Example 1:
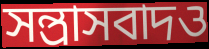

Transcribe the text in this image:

সন্ত্রাসবাদও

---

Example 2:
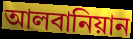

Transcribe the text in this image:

আলবানিয়ান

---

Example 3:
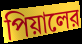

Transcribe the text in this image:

পিয়ালের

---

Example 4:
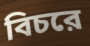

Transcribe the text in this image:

বিচরে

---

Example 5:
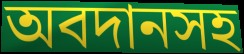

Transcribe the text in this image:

অবদানসহ